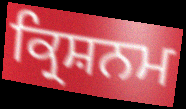
ਕ੍ਰਿਸ਼ਨਮ